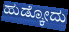
ಹುಡ್ಕೋದು